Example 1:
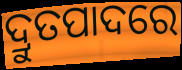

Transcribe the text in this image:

ଦ୍ରୁତପାଦରେ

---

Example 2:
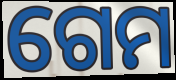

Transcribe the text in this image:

ଗେମ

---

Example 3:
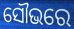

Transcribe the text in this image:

ସୌଭରେ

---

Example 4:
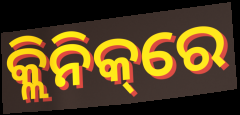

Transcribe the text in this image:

କ୍ଲିନିକ୍‌ରେ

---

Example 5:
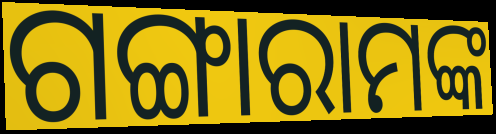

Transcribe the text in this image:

ଗଙ୍ଗାରାମଙ୍କ